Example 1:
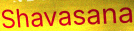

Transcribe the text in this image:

Shavasana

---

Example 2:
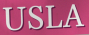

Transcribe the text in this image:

USLA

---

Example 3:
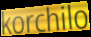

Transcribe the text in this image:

korchilo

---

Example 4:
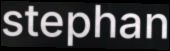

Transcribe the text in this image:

stephan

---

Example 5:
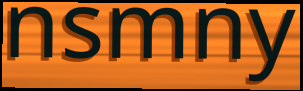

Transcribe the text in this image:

nsmny